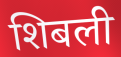
शिबली